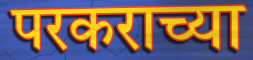
परकराच्या